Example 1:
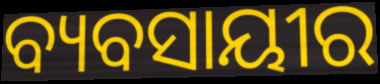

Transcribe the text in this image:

ବ୍ୟବସାୟୀର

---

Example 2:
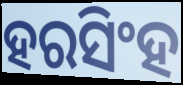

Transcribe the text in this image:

ହରସିଂହ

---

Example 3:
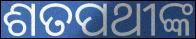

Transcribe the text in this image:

ଶତପଥୀଙ୍କ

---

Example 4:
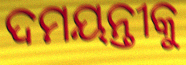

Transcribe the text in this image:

ଦମୟନ୍ତୀକୁ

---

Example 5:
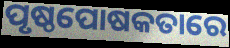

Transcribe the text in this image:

ପୃଷ୍ଠପୋଷକତାରେ